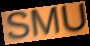
SMU